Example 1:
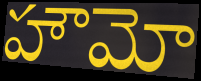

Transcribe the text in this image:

హౌమో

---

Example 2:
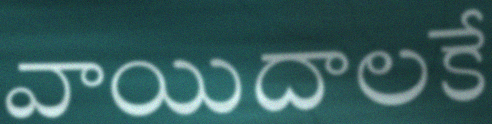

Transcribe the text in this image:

వాయిదాలకే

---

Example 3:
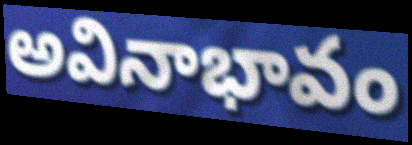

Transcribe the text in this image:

అవినాభావం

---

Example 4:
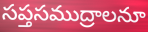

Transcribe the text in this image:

సప్తసముద్రాలనూ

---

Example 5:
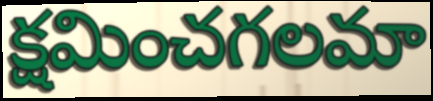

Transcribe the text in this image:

క్షమించగలమా